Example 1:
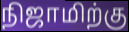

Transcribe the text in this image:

நிஜாமிற்கு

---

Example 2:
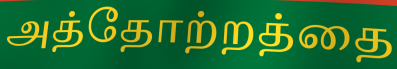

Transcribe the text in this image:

அத்தோற்றத்தை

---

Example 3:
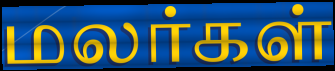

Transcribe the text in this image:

மலர்கள்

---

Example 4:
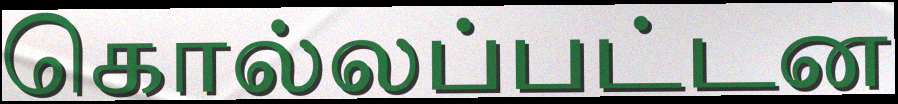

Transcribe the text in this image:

கொல்லப்பட்டன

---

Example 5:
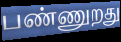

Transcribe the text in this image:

பண்ணுறது